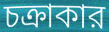
চক্রাকার